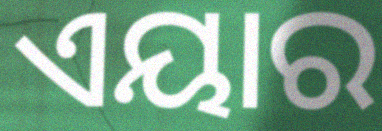
ଏୟାର